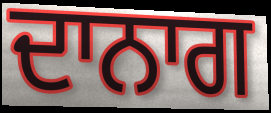
ਦਾਨਾਗ